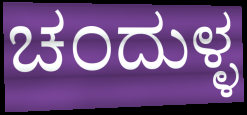
ಚಂದುಳ್ಳ